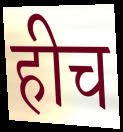
हीच